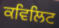
ਕਵਿਲਿਟ